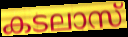
കടലാസ്